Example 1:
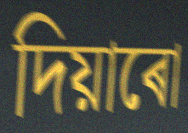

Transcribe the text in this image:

দিয়াৰো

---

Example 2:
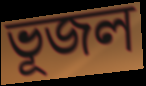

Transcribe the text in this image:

ভূজল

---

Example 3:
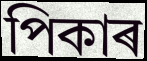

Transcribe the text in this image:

পিকাৰ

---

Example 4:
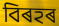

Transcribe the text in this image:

বিৰহৰ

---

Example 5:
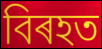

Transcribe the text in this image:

বিৰহত